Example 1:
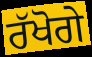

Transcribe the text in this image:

ਰੱਖੋਗੇ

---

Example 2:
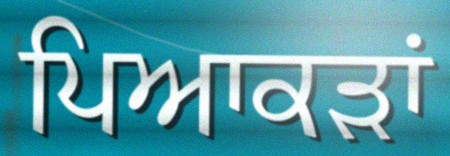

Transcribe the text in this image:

ਪਿਆਕੜਾਂ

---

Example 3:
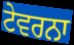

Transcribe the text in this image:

ਟੇਵਰਨਾ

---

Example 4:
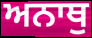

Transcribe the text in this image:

ਅਨਾਥੁ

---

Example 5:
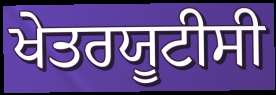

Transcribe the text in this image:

ਖੇਤਰਯੂਟੀਸੀ